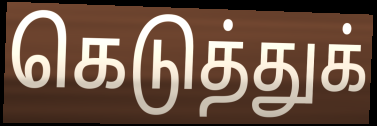
கெடுத்துக்